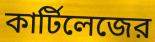
কার্টিলেজের